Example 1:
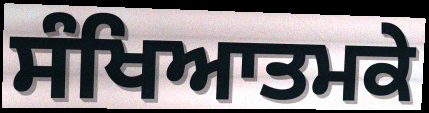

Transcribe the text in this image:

ਸੰਖਿਆਤਮਕੇ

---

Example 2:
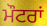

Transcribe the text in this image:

ਮੌਟਰਾਂ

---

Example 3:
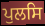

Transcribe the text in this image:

ਪੁਲਸਿ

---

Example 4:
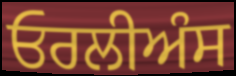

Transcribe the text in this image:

ਓਰਲੀਅੰਸ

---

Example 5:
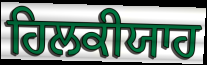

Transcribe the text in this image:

ਹਿਲਕੀਯਾਹ